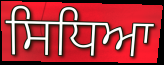
ਸਿਧਿਆ